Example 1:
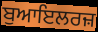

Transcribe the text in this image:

ਬੁਆਇਲਰਜ਼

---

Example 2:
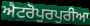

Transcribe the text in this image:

ਐਟਰੋਪੁਰਪੁਰੀਆ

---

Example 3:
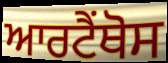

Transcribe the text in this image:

ਆਰਟੈਂਥੋਸ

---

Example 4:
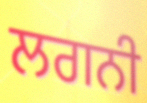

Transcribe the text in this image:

ਲਗਨੀ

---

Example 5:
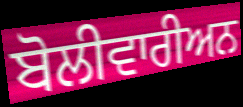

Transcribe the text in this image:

ਬੋਲੀਵਾਰੀਅਨ